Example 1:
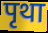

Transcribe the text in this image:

पृथा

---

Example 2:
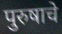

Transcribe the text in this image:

पुरुषाचे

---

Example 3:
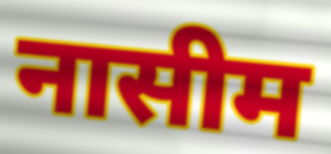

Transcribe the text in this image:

नासीम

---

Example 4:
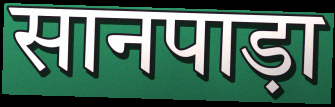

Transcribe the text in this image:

सानपाड़ा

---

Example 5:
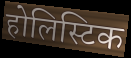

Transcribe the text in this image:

होलिस्टिक